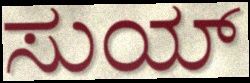
ಸುಯ್